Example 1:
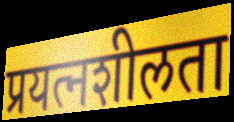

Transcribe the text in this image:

प्रयत्नशीलता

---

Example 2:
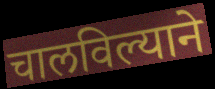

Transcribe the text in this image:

चालविल्याने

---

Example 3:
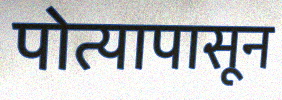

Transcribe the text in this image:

पोत्यापासून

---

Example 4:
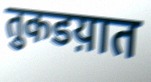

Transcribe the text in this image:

तुकडय़ात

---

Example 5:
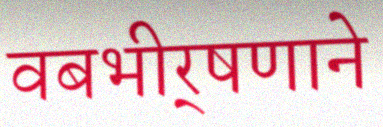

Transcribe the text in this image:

वबभीर्षणाने